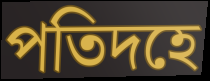
পতিদহে